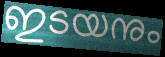
ഇടയനും